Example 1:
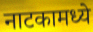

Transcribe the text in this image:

नाटकामध्ये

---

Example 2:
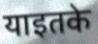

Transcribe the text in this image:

याइतके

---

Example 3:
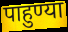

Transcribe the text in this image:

पाहुण्या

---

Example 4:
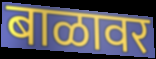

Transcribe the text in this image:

बाळावर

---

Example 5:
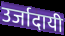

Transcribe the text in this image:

उर्जादायी